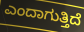
ಎಂದಾಗುತ್ತಿದೆ